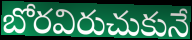
బోరవిరుచుకునే